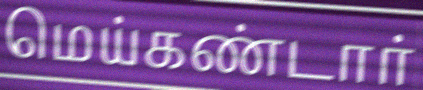
மெய்கண்டார்